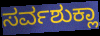
ಸರ್ವಶುಕ್ಲಾ